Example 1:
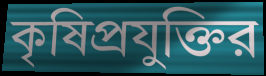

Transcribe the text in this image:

কৃষিপ্রযুক্তির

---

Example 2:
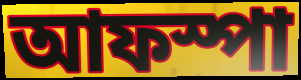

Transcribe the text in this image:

আফস্পা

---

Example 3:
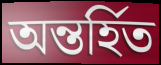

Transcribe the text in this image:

অন্তর্হিত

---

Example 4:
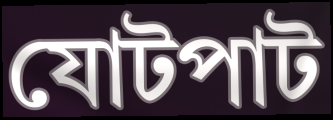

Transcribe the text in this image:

যোটপাট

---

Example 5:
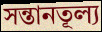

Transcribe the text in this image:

সন্তানতূল্য